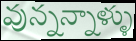
వున్నన్నాళ్ళు